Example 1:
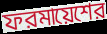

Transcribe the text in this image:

ফরমায়েশের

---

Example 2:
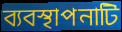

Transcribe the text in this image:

ব্যবস্থাপনাটি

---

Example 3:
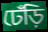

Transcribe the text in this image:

ঢেঁড়ি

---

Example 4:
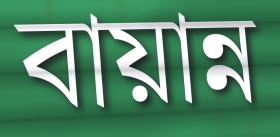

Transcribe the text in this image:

বায়ান্ন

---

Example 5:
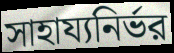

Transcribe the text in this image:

সাহায্যনির্ভর